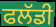
ਫਲੱਡੀ